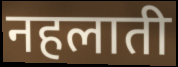
नहलाती